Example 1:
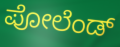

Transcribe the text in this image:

ಪೋಲೆಂಡ್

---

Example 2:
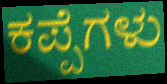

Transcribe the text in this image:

ಕಪ್ಪೆಗಳು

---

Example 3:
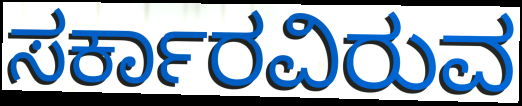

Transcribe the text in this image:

ಸರ್ಕಾರವಿರುವ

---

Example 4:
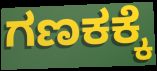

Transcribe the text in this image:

ಗಣಕಕ್ಕೆ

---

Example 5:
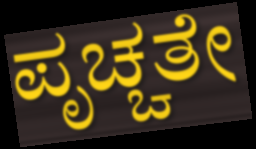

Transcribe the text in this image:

ಪೃಚ್ಚತೇ